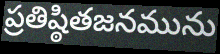
ప్రతిష్ఠితజనమును